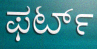
ಫರ್ಟ್